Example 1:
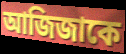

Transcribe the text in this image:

আজিজাকে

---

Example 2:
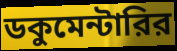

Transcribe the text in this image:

ডকুমেন্টারির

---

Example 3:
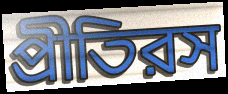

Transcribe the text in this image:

প্রীতিরস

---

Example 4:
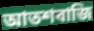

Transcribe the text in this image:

আতশবাজি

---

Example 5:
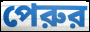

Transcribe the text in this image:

পেরুর